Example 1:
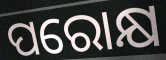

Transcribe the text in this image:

ପରୋକ୍ଷ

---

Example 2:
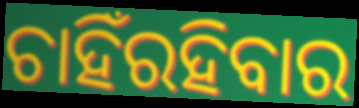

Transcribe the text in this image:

ଚାହିଁରହିବାର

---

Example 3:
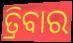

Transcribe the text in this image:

ତ୍ରିବାର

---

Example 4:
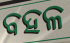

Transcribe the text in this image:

ବହଳ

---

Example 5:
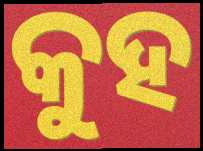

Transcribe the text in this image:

କୁହ